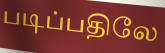
படிப்பதிலே